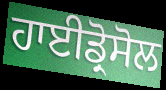
ਹਾਈਡ੍ਰੋਸੋਲ